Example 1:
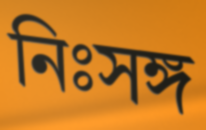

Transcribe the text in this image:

নিঃসঙ্গ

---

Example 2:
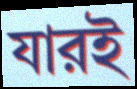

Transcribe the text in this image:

যারই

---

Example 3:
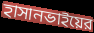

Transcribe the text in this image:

হাসানভাইয়ের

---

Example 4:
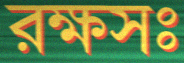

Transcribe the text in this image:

রক্ষসঃ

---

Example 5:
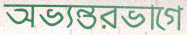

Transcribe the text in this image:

অভ্যন্তরভাগে